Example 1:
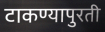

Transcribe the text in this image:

टाकण्यापुरती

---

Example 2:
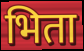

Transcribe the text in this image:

भिता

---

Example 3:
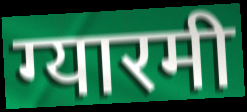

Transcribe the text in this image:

ग्यारमी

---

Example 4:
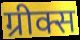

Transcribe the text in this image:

ग्रीक्स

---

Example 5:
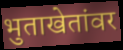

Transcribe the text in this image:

भुताखेतांवर